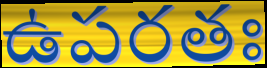
ఉపరతః